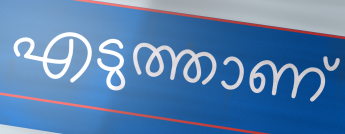
എടുത്താണ്